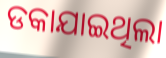
ଡକାଯାଇଥିଲା